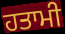
ਹਤਾਮੀ